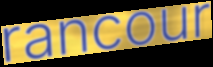
rancour